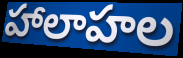
హాలాహల